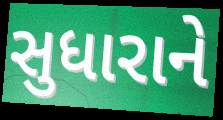
સુધારાને